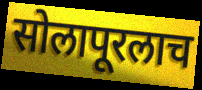
सोलापूरलाच